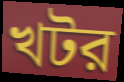
খটর